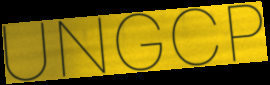
UNGCP